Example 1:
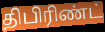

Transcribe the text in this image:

திபிரிண்ட்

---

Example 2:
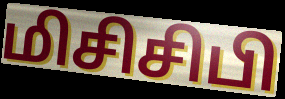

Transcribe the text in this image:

மிசிசிபி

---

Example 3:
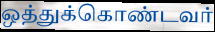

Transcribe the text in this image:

ஒத்துக்கொண்டவர்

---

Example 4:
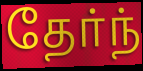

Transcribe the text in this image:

தேர்ந்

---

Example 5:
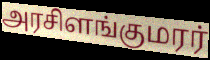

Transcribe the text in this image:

அரசிளங்குமரர்